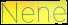
Nene